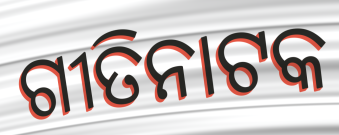
ଗୀତିନାଟକ